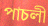
পাচলী